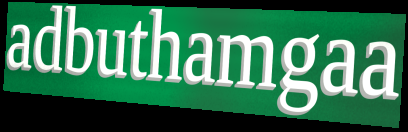
adbuthamgaa